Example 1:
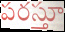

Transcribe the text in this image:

పరస్తూ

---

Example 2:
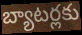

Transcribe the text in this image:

బ్యాటర్లకు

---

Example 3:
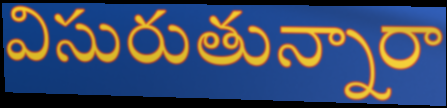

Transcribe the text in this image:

విసురుతున్నారా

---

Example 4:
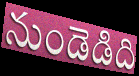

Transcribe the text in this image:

నుండెడిది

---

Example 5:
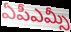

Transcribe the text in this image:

ఏపీఎమ్సీ